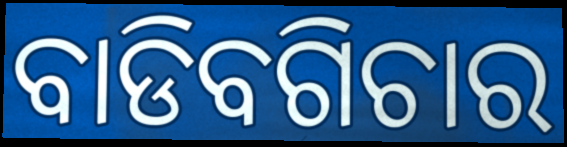
ବାଡିବଗିଚାର